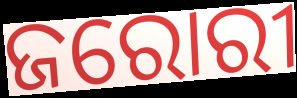
ଜରୋରୀ